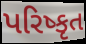
પરિષ્કૃત